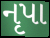
નૃપા